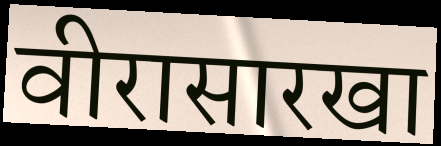
वीरासारखा